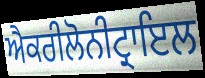
ਐਕਰੀਲੋਨੀਟ੍ਰਾਇਲ